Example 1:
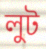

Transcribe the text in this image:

লুট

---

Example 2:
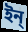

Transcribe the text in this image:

ইন্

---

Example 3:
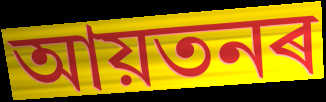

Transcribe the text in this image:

আয়তনৰ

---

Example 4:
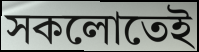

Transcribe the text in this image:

সকলোতেই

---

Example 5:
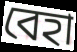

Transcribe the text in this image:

বেহা